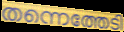
തന്നെത്തേടി